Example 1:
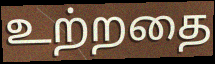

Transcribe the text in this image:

உற்றதை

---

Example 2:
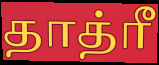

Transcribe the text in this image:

தாத்ரீ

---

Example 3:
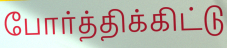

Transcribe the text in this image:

போர்த்திக்கிட்டு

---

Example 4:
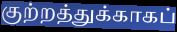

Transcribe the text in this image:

குற்றத்துக்காகப்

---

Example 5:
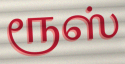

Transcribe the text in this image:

ரூஸ்